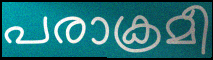
പരാക്രമീ